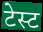
टेस्ट